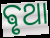
ଵୃଥା